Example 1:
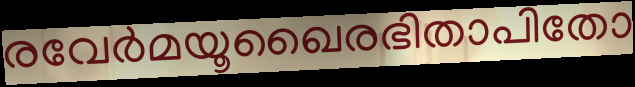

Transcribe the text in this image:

രവേർമയൂഖൈരഭിതാപിതോ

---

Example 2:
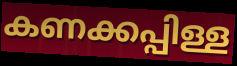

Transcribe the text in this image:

കണക്കപ്പിള്ള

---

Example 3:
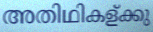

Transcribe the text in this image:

അതിഥികള്ക്കു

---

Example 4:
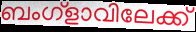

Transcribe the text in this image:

ബംഗ്ളാവിലേക്ക്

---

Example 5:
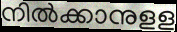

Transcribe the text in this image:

നിൽക്കാനുളള